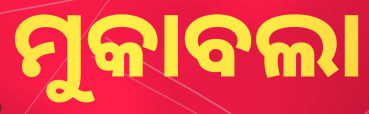
ମୁକାବଲା